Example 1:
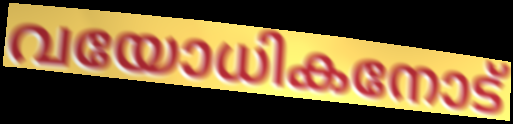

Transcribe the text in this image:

വയോധികനോട്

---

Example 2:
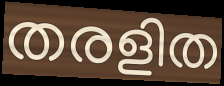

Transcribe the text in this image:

തരളിത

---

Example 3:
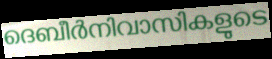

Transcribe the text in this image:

ദെബീർനിവാസികളുടെ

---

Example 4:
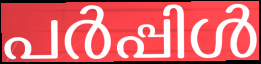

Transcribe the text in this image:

പർപ്പിൾ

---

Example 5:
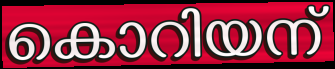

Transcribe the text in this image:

കൊറിയന്